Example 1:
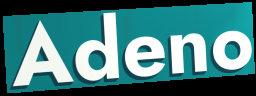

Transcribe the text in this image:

Adeno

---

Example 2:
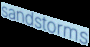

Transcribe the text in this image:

sandstorms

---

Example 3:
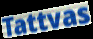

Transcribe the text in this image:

Tattvas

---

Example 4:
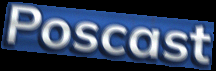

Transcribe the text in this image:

Poscast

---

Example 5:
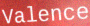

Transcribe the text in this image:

Valence